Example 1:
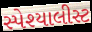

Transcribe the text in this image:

સ્પેશ્યાલીસ્ટ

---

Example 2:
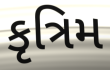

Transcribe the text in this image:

કૃત્રિમ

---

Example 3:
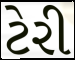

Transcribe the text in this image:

ટેરી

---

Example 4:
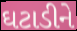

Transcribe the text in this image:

ઘટાડીને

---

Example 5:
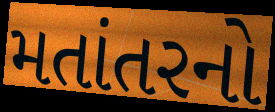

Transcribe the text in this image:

મતાંતરનો